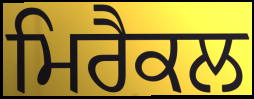
ਮਿਰੈਕਲ